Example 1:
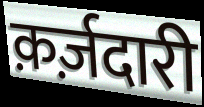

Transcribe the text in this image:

क़र्ज़दारी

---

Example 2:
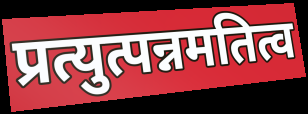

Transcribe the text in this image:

प्रत्युत्पन्नमतित्व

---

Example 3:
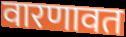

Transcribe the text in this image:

वारणावत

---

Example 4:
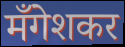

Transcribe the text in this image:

मँगेशकर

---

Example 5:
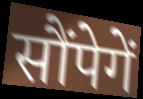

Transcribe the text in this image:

सौंपेगें